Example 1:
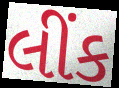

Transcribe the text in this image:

લીંક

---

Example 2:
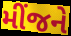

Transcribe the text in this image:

મીંજને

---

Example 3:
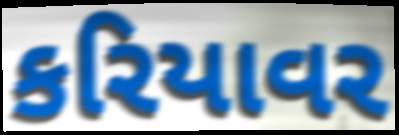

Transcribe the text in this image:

કરિયાવર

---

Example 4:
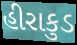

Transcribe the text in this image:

હીરાકુડ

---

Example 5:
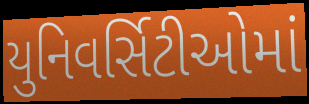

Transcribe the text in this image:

યુનિવર્સિટીઓમાં